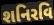
શનિરવિ